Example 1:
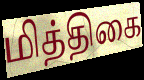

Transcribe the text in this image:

மித்திகை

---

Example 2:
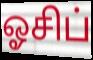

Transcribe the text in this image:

ஓசிப்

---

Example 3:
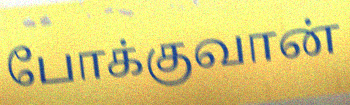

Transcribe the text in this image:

போக்குவான்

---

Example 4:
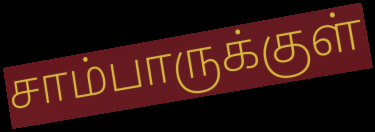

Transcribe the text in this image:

சாம்பாருக்குள்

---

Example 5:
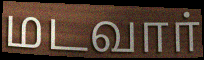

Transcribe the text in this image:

மடவார்